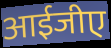
आईजीए